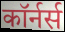
कॉर्नर्स